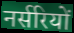
नर्सरियों